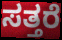
ಸತ್ತರೆ